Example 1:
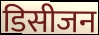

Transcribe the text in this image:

डिसीजन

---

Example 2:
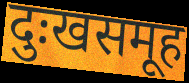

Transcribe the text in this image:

दुःखसमूह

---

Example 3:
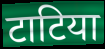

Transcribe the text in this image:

टाटिया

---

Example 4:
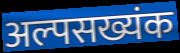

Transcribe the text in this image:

अल्पसख्यंक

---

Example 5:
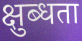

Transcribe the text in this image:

क्षुब्धता